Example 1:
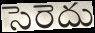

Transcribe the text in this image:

సెరెదు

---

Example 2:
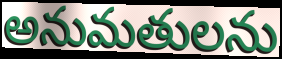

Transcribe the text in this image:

అనుమతులను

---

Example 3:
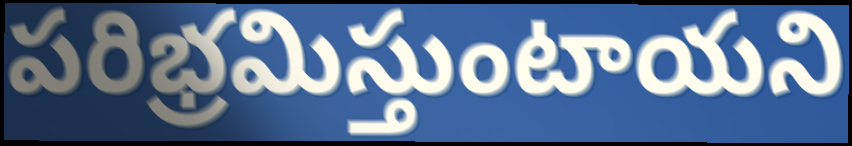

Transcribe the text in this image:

పరిభ్రమిస్తుంటాయని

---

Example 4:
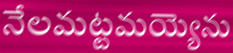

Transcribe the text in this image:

నేలమట్టమయ్యెను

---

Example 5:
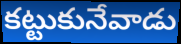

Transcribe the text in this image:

కట్టుకునేవాడు